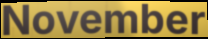
November